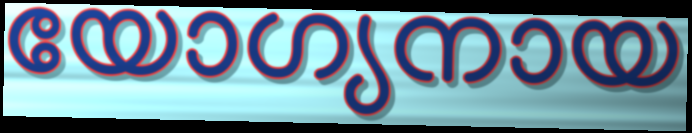
യോഗ്യനായ